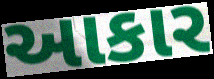
આકાર